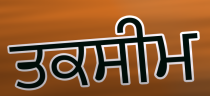
ਤਕਸੀਮ